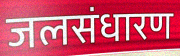
जलसंधारण